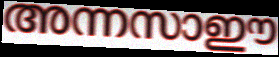
അന്നസാഈ